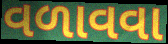
વળાવવા